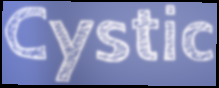
Cystic